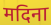
मदिना